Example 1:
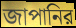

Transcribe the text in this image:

জাপানির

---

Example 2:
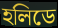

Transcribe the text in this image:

হলিডে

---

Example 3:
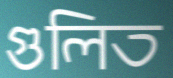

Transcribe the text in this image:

গুলিত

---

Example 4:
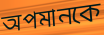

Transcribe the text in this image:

অপমানকে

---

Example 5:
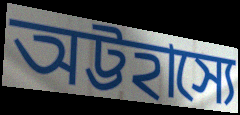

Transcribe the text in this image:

অট্টহাস্যে